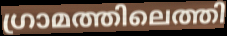
ഗ്രാമത്തിലെത്തി